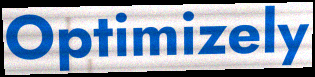
Optimizely